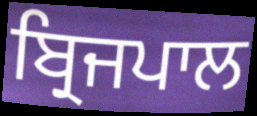
ਬ੍ਰਿਜਪਾਲ